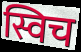
स्विच